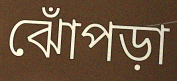
ঝোঁপড়া